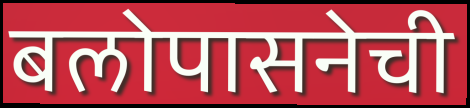
बलोपासनेची